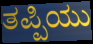
ತಪ್ಪಿಯು